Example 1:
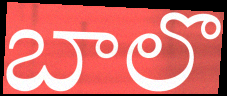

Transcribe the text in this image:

బాలొ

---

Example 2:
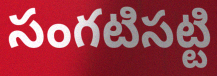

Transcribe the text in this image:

సంగటిసట్టి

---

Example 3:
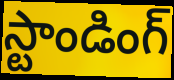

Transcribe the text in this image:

స్టాండింగ్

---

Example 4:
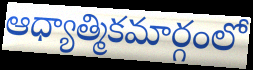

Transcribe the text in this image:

ఆధ్యాత్మికమార్గంలో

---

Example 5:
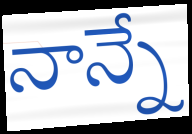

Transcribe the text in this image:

నాన్నే